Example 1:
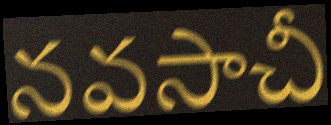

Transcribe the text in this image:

నవసాచీ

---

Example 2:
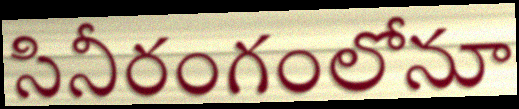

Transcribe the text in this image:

సినీరంగంలోనూ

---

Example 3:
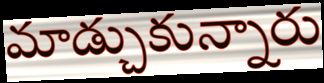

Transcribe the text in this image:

మాడ్చుకున్నారు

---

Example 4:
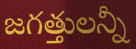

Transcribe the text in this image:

జగత్తులన్నీ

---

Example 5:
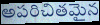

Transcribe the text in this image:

అపరిచితమైన